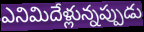
ఎనిమిదేళ్లున్నప్పుడు